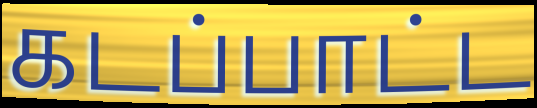
கடப்பாட்ட